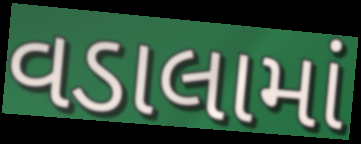
વડાલામાં